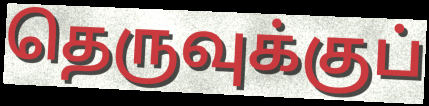
தெருவுக்குப்